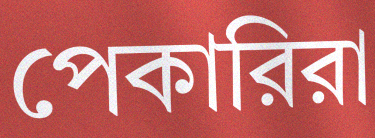
পেকারিরা